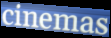
cinemas